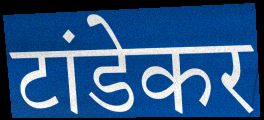
टांडेकर